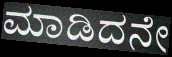
ಮಾಡಿದನೇ